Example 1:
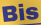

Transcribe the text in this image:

Bis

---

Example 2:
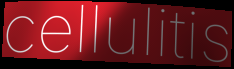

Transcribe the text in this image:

cellulitis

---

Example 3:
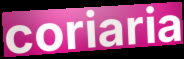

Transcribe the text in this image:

coriaria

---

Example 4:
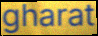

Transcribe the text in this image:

gharat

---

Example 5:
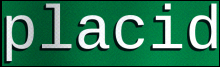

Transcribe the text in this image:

placid